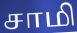
சாமி